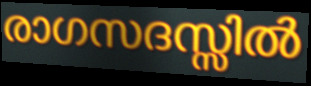
രാഗസദസ്സിൽ